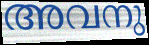
അവനു